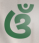
ଓଁ